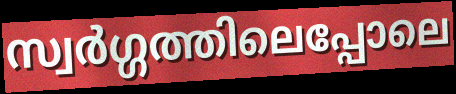
സ്വർഗ്ഗത്തിലെപ്പോലെ